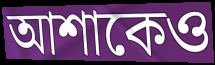
আশাকেও